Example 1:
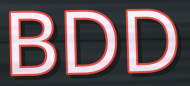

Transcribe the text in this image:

BDD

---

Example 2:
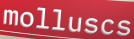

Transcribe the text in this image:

molluscs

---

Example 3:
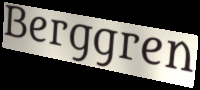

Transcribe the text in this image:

Berggren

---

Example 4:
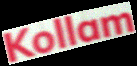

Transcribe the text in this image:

Kollam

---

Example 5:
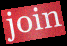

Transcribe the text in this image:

join